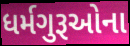
ધર્મગુરૂઓના